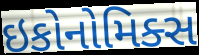
ઇકોનોમિક્સ